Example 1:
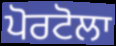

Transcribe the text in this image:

ਪੋਰਟੋਲਾ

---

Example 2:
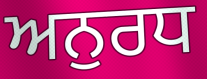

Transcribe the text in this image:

ਅਨੁਰਧ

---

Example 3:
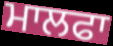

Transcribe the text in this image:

ਮਾਲਫਾ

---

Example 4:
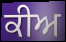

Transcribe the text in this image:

ਕੀਅ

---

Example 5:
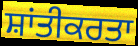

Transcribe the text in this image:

ਸ਼ਾਂਤੀਕਰਤਾ